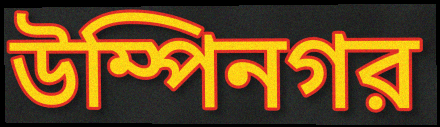
উম্পিনগর